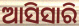
ଆସିସାରି